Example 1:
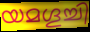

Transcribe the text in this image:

യമഗൂച്ചി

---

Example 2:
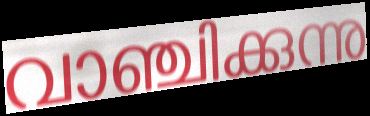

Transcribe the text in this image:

വാഞ്ചിക്കുന്നു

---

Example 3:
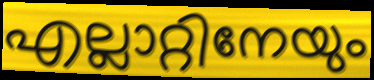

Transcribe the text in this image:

എല്ലാറ്റിനേയും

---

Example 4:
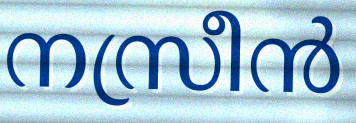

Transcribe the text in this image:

നസ്രീൻ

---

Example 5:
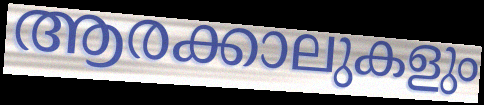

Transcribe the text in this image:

ആരക്കാലുകളും